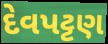
દેવપટ્ટણ